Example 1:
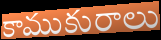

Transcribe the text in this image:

కాముకురాలు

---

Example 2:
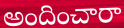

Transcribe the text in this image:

అందించారా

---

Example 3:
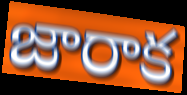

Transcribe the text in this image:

జారాక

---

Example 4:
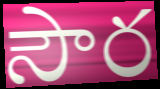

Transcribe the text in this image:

సౌర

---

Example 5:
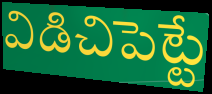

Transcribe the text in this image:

విడిచిపెట్టే